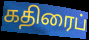
கதிரைப்